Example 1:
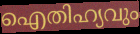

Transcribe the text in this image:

ഐതിഹ്യവും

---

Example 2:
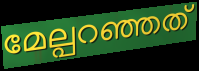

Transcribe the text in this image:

മേല്പറഞ്ഞത്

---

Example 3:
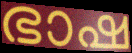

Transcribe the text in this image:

ഭാഷ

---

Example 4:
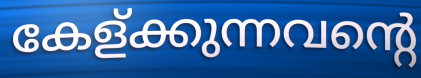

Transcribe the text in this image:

കേള്ക്കുന്നവന്റെ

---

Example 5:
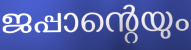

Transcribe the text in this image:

ജപ്പാന്റെയും